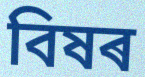
বিষৰ